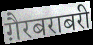
ग़ैरबराबरी